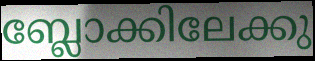
ബ്ലോക്കിലേക്കു